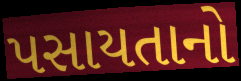
પસાયતાનો